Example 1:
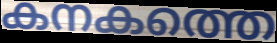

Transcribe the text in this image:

കനകത്തെ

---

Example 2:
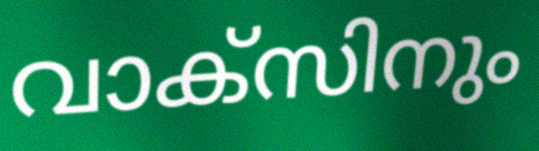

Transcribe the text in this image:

വാക്സിനും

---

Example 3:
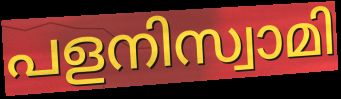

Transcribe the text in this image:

പളനിസ്വാമി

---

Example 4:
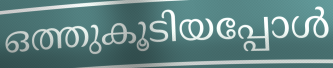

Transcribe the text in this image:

ഒത്തുകൂടിയപ്പോൾ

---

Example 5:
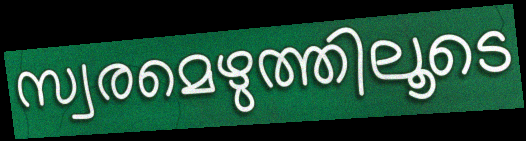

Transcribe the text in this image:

സ്വരമെഴുത്തിലൂടെ